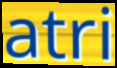
atri